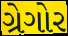
ગ્રેગોર